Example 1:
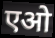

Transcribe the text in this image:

एओ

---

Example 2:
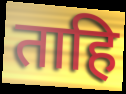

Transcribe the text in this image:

ताहि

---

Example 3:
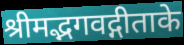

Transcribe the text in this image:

श्रीमद्भगवद्गीताके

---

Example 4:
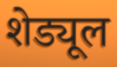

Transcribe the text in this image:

शेड्यूल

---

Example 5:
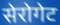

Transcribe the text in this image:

सेरोगेट